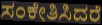
ಸಂಕೇತಿಸಿದರೆ